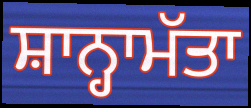
ਸ਼ਾਨ੍ਹਾਮੱਤਾ